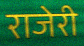
राजेरी